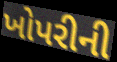
ખોપરીની